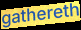
gathereth